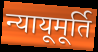
न्यायूमूर्ति